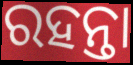
ରହନ୍ତା